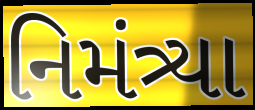
નિમંત્ર્યા